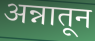
अन्नातून